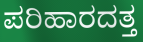
ಪರಿಹಾರದತ್ತ